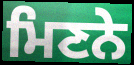
ਮਿਣਨੇ